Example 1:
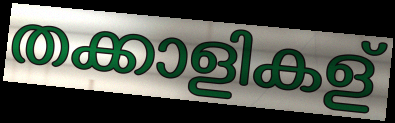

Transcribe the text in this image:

തക്കാളികള്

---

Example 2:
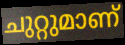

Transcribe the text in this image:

ചുറ്റുമാണ്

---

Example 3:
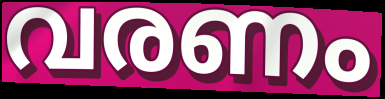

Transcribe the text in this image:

വരണം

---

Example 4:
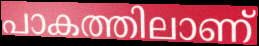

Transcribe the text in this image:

പാകത്തിലാണ്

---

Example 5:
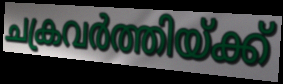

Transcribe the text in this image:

ചക്രവർത്തിയ്ക്ക്